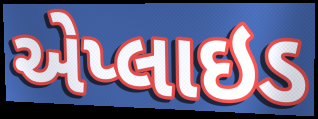
એપ્લાઇડ